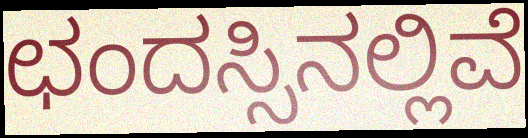
ಛಂದಸ್ಸಿನಲ್ಲಿವೆ